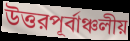
উত্তরপূর্বাঞ্চলীয়